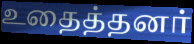
உதைத்தனர்